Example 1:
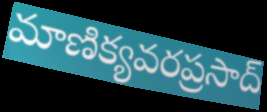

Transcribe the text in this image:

మాణిక్యవరప్రసాద్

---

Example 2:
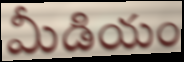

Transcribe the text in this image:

మీడియం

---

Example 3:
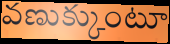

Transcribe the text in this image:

వణుక్కుంటూ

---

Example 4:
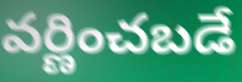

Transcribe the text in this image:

వర్ణించబడే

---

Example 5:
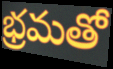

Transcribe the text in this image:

భ్రమతో